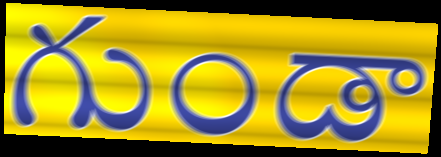
గుండా